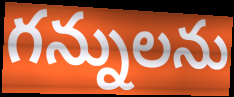
గన్నులను